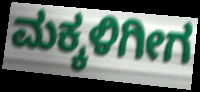
ಮಕ್ಕಳಿಗೀಗ